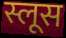
स्लूस